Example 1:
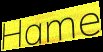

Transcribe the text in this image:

Hame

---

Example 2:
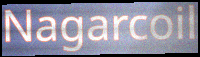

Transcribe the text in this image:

Nagarcoil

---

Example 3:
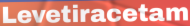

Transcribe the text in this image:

Levetiracetam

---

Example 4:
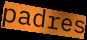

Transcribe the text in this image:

padres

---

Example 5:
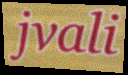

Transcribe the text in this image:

jvali